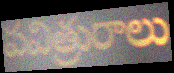
పవిత్రురాలు